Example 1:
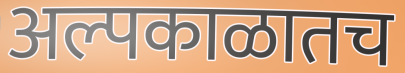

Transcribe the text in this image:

अल्पकाळातच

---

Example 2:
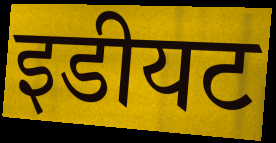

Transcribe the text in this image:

इडीयट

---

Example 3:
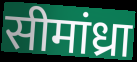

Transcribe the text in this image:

सीमांध्रा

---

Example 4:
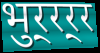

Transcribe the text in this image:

भुर्रर्र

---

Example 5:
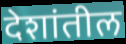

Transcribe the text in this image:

देशांतील